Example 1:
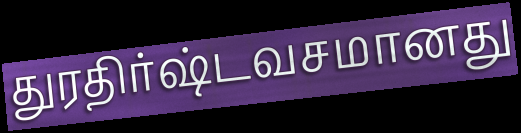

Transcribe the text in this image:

துரதிர்ஷ்டவசமானது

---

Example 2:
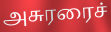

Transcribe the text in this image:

அசுரரைச்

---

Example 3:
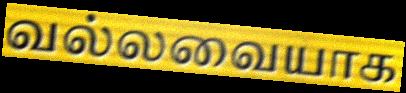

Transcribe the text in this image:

வல்லவையாக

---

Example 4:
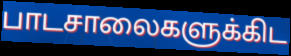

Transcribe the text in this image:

பாடசாலைகளுக்கிட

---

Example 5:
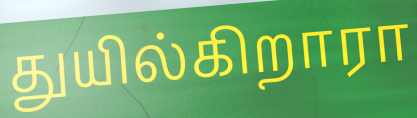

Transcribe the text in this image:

துயில்கிறாரா